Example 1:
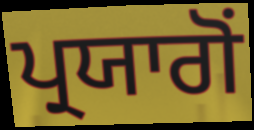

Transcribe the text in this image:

ਪ੍ਰਯਾਗੋਂ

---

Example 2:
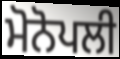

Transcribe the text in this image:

ਮੋਨੋਪਲੀ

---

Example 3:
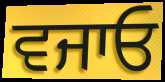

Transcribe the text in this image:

ਵਜਾਓ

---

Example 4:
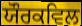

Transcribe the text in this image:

ਯੌਰਕਵਿਲ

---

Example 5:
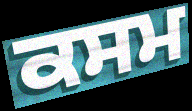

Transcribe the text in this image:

ਕਸਮ